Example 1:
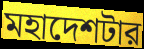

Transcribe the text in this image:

মহাদেশটার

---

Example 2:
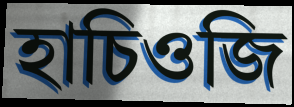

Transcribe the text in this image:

হাচিওজি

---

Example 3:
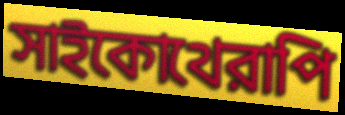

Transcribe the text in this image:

সাইকোথেরাপি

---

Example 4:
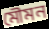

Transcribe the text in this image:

মৌমন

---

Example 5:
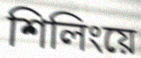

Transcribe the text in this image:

শিলিংয়ে